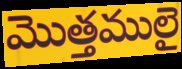
మొత్తములై